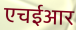
एचईआर